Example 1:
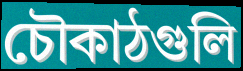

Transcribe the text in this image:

চৌকাঠগুলি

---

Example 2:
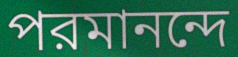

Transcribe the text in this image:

পরমানন্দে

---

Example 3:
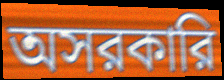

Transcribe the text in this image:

অসরকারি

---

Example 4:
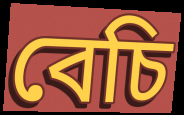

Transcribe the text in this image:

বেচি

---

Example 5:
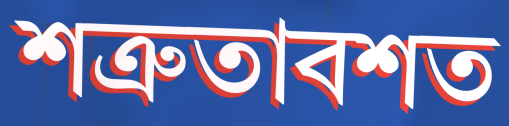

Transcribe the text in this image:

শত্রুতাবশত